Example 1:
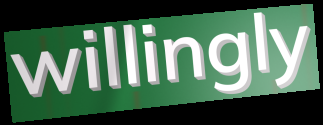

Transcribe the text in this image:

willingly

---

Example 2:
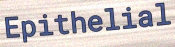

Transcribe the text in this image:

Epithelial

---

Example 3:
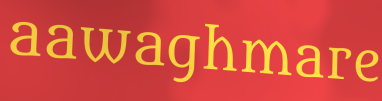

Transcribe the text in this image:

aawaghmare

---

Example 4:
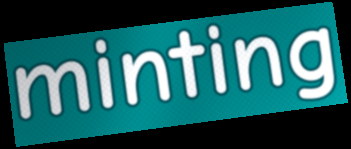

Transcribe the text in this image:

minting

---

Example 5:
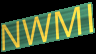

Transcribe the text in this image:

NWMI